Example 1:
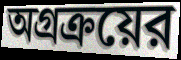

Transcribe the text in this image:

অগ্রক্রয়ের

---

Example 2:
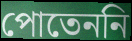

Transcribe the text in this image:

পোতেননি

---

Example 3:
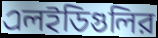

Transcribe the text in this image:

এলইডিগুলির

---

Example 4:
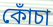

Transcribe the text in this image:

কোঁচা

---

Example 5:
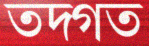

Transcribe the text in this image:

তদ্গত